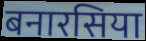
बनारसिया